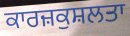
ਕਾਰਜ਼ਕੁਸ਼ਲਤਾ